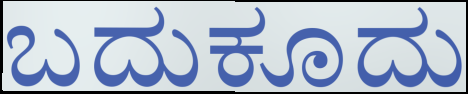
ಬದುಕೂದು